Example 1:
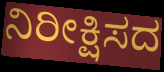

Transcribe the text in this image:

ನಿರೀಕ್ಷಿಸದ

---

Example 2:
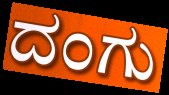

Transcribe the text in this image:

ದಂಗು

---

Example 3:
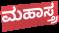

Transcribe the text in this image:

ಮಹಾಸ್ತ್ರ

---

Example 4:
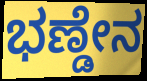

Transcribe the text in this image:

ಭಣ್ಡೇನ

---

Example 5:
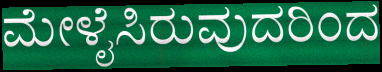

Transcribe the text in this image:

ಮೇಳೈಸಿರುವುದರಿಂದ